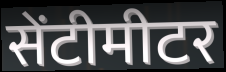
सेंटीमीटर